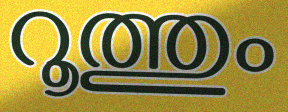
റൂത്തും